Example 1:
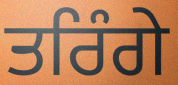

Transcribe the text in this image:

ਤਰਿੰਗੇ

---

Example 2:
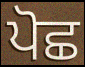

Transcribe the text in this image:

ਪੋਛ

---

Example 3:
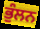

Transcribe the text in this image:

ਭੁੰਲਨ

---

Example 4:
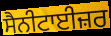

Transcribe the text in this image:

ਸੈਨੀਟਾਈਜ਼ਰ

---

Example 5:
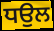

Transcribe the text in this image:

ਧਉਲ